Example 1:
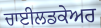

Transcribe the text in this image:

ਚਾਈਲਡਕੇਅਰ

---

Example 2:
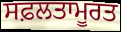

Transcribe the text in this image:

ਸਫ਼ਲਤਾਮੂਰਤ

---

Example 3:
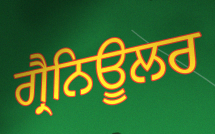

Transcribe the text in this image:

ਗ੍ਰੈਨਿਊਲਰ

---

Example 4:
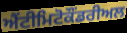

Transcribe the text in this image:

ਐਂਟੀਮਿਟੋਕੌਂਡਰੀਅਲ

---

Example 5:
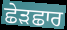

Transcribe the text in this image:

ਛੇੜਛਾਰ